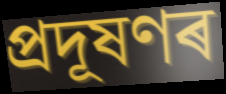
প্ৰদূষণৰ